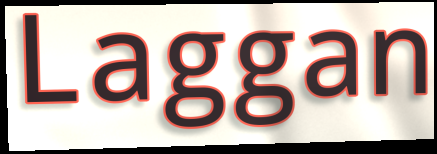
Laggan